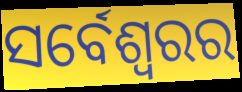
ସର୍ବେଶ୍ୱରର